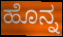
ಹೊನ್ನ